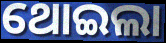
ଥୋଇଲା